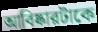
আবিষ্কারটাকে